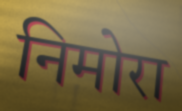
निमोरा